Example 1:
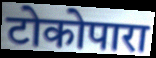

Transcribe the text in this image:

टोकोपारा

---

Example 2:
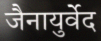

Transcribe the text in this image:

जैनायुर्वेद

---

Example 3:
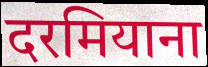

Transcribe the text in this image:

दरमियाना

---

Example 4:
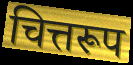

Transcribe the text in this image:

चित्तरूप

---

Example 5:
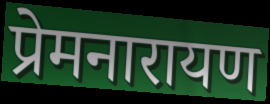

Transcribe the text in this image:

प्रेमनारायण